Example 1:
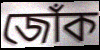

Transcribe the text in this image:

জোঁক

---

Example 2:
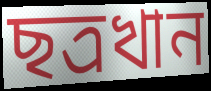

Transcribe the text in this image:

ছত্রখান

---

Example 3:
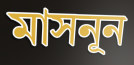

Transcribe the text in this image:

মাসনূন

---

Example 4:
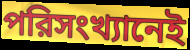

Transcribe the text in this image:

পরিসংখ্যানেই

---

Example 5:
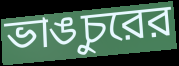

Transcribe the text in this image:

ভাঙচুরের